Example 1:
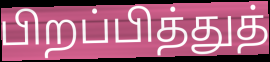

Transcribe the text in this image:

பிறப்பித்துத்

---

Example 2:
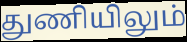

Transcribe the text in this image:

துணியிலும்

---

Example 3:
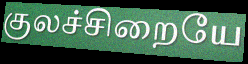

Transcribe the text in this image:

குலச்சிறையே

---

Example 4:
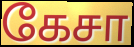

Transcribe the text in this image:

கேசா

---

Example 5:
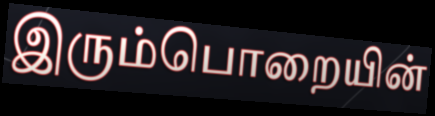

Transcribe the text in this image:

இரும்பொறையின்